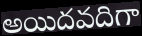
అయిదవదిగా